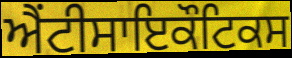
ਐਂਟੀਸਾਇਕੌਟਿਕਸ